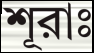
শূরাঃ